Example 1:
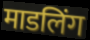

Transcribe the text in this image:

माडलिंग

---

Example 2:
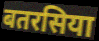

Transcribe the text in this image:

बतरसिया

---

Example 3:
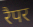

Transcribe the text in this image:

रैपर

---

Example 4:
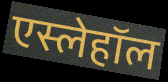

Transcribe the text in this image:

एस्लेहॉल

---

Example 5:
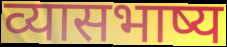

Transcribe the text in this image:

व्यासभाष्य